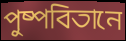
পুষ্পবিতানে